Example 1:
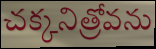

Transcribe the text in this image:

చక్కనిత్రోవను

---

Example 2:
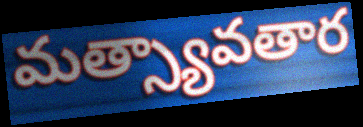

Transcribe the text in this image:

మత్స్యావతార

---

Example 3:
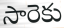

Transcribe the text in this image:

సారెకు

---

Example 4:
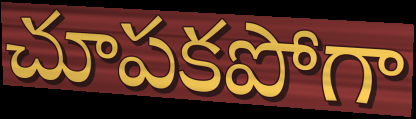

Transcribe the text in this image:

చూపకపోగా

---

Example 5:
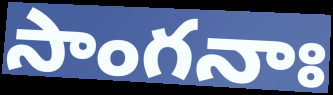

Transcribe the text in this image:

సాంగనాః